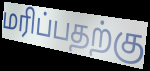
மரிப்பதற்கு